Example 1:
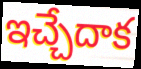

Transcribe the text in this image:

ఇచ్చేదాక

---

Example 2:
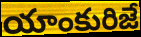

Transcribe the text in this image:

యాంకురిజే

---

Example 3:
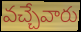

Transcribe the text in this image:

వచ్చేవారు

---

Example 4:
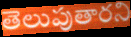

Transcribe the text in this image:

తెలుపుతారని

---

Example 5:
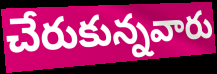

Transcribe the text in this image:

చేరుకున్నవారు